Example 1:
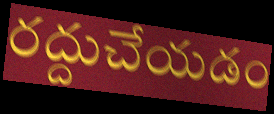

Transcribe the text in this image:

రద్దుచేయడం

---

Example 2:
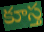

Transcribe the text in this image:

కూస్త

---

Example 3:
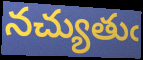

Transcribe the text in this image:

నచ్యుతుఁ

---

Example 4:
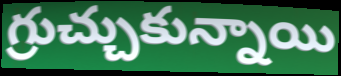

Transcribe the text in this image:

గ్రుచ్చుకున్నాయి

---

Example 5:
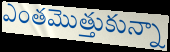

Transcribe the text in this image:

ఎంతమొత్తుకున్నా